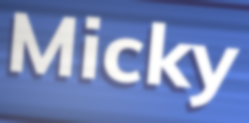
Micky